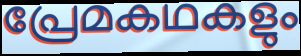
പ്രേമകഥകളും